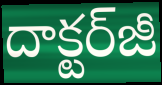
దాక్టర్‌జీ